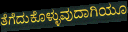
ತೆಗೆದುಕೊಳ್ಳುವುದಾಗಿಯೂ